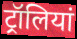
ट्रॉलियां